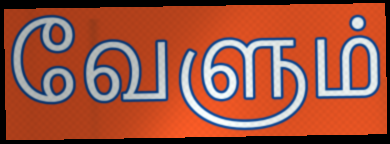
வேளும்